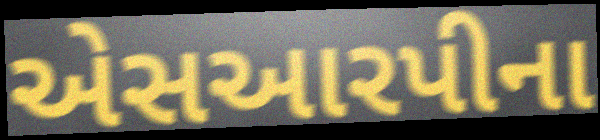
એસઆરપીના